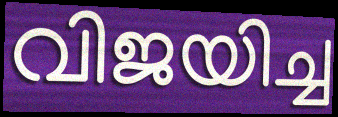
വിജയിച്ച